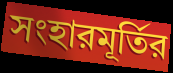
সংহারমূর্তির